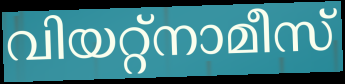
വിയറ്റ്നാമീസ്